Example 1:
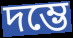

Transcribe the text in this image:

দম্ভে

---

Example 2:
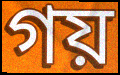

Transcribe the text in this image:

গয়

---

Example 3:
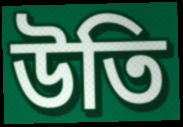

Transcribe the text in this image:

উতি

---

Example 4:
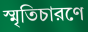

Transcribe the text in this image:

স্মৃতিচারণে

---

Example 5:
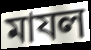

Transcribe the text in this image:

মাযল